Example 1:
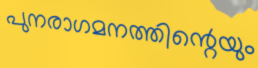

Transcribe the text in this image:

പുനരാഗമനത്തിന്റെയും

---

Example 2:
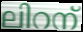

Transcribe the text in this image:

ലിറന്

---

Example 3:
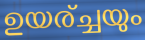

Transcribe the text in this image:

ഉയര്ച്ചയും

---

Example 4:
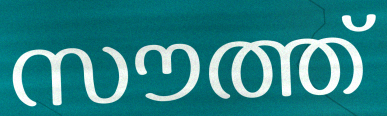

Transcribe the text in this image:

സൗത്ത്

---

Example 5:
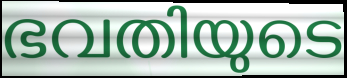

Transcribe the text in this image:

ഭവതിയുടെ